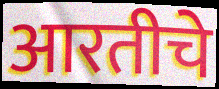
आरतीचे